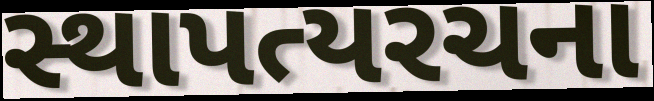
સ્થાપત્યરચના